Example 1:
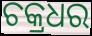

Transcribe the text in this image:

ଚକ୍ରଧର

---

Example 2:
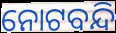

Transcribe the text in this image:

ନୋଟବନ୍ଦି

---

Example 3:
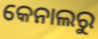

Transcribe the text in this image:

କେନାଲରୁ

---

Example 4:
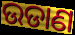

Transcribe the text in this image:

ଉଡାଣ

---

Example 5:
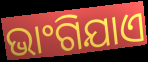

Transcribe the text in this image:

ଭାଂଗିଯାଏ